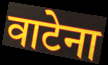
वाटेना